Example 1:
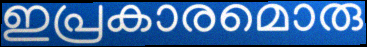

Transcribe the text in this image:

ഇപ്രകാരമൊരു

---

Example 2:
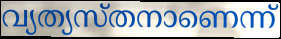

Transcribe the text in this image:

വ്യത്യസ്തനാണെന്ന്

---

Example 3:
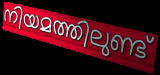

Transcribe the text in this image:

നിയമത്തിലുണ്ട്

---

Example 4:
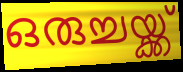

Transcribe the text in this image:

ഒരുച്ചയ്ക്ക്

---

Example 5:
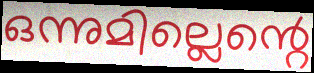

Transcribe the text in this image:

ഒന്നുമില്ലെന്റെ